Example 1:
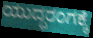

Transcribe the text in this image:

ಯುದ್ಧರಂಗಕ್ಕೆ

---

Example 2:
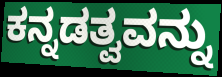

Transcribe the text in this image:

ಕನ್ನಡತ್ವವನ್ನು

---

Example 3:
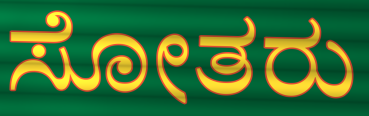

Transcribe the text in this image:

ಸೋತರು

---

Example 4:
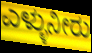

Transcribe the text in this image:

ಎಳ್ಳುನೀರು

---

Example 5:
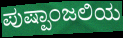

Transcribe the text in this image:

ಪುಷ್ಪಾಂಜಲಿಯ